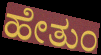
ಹೇತುಂ